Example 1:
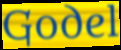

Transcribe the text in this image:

Godel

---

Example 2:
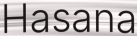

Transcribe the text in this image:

Hasana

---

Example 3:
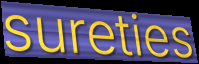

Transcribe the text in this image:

sureties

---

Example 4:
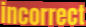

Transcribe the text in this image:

incorrect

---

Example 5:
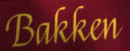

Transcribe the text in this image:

Bakken